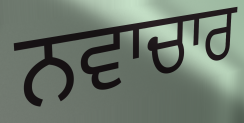
ਨਵਾਚਾਰ